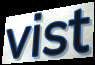
vist